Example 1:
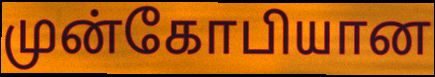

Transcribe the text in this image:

முன்கோபியான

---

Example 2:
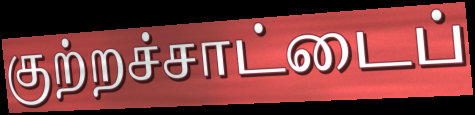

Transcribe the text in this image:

குற்றச்சாட்டைப்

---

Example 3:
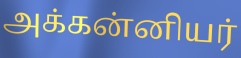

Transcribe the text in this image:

அக்கன்னியர்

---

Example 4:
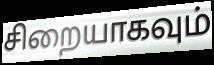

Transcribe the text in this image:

சிறையாகவும்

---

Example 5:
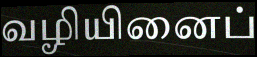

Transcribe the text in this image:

வழியினைப்